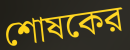
শোষকের